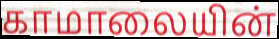
காமாலையின்